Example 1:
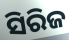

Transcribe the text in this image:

ସିରିଜ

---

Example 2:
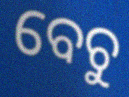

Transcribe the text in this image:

ବେଚୁ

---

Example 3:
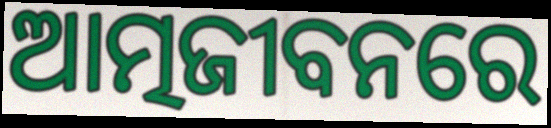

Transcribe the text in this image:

ଆତ୍ମଜୀବନରେ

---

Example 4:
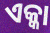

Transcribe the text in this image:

ଏକ୍କା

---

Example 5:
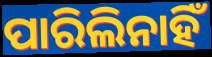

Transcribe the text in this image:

ପାରିଲିନାହିଁ